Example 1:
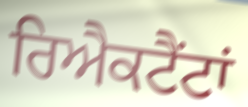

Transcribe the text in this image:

ਰਿਐਕਟੈਂਟਾਂ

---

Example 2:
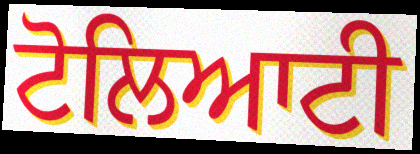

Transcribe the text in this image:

ਟੋਲਿਆਟੀ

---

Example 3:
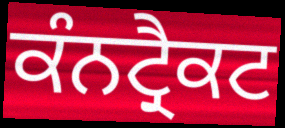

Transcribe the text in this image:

ਕੰਨਟ੍ਰੈਕਟ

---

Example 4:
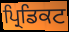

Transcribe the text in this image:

ਪ੍ਰਿਡਿਕਟ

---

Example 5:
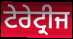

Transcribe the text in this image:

ਟੇਰੇਟ੍ਰੀਜ